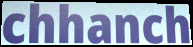
chhanch